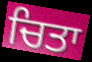
ਚਿਤਾ